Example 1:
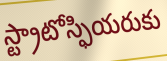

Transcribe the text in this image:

స్ట్రాటోస్ఫియరుకు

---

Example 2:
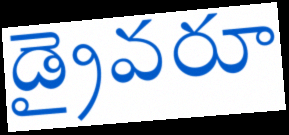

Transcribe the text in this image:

డ్రైవరూ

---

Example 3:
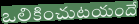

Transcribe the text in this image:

ఒలికించుటయందే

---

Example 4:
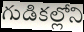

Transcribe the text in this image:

గుడికల్లోని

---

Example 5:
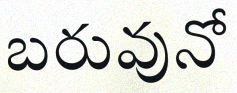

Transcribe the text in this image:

బరువునో